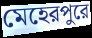
মেহেরপুরে